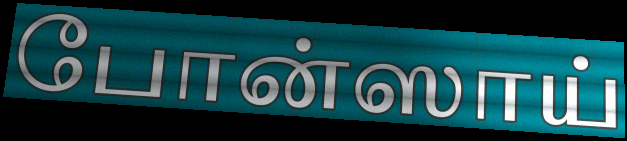
போன்ஸாய்